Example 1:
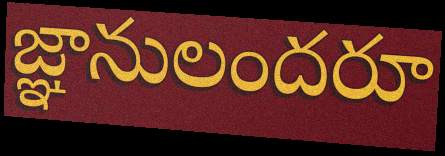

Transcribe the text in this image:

జ్ఞానులందరూ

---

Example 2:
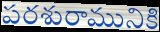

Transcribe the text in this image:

పరశురామునికి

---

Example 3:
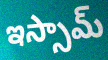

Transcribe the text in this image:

ఇస్సామ్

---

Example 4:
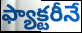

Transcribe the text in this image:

ఫ్యాక్టరీనే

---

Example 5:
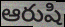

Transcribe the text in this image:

ఆరుషి